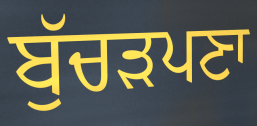
ਬੁੱਚੜਪਣਾ